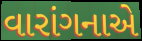
વારાંગનાએ